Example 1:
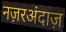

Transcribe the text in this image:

नज़रअंदाज़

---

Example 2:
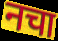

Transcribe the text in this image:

नचा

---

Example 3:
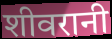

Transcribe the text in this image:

शीवरानी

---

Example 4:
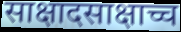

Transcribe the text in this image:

साक्षादसाक्षाच्च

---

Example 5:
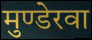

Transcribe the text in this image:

मुण्डेरवा